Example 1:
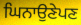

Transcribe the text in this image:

ਘਿਨਾਉਣੇਪਣ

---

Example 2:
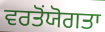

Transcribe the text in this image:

ਵਰਤੋਂਯੋਗਤਾ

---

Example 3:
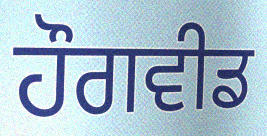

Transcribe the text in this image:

ਹੌਗਵੀਡ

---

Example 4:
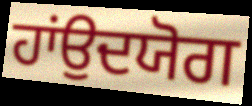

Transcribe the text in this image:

ਹਾਂਉਦਯੋਗ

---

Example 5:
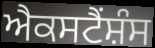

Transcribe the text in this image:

ਐਕਸਟੈਂਸ਼ੰਸ